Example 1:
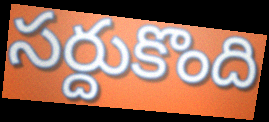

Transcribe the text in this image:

సర్దుకొంది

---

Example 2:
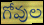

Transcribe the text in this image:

గోవుల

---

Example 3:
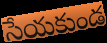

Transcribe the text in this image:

సేయకుండ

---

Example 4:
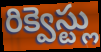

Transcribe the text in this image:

రిక్వెస్ట్లు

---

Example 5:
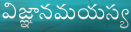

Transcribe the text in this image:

విజ్ఞానమయస్య